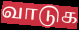
வாடுக